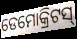
ଡେମୋକ୍ରିଟସ୍